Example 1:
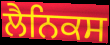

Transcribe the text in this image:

ਲੈਨਿਕਸ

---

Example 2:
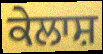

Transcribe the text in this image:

ਕੇਲਾਸ਼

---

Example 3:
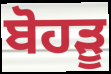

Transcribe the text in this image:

ਬੋਹੜੂ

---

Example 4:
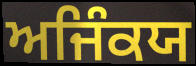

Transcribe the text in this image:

ਅਜਿੰਕਯ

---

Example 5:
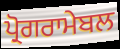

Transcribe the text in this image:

ਪ੍ਰੋਗਰਾਮੇਬਲ